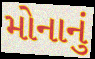
મોનાનું